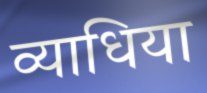
व्याधिया